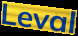
Leval